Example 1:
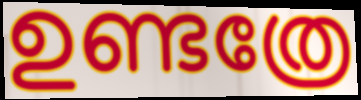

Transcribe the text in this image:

ഉണ്ടത്രേ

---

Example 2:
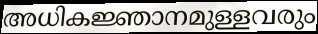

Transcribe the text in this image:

അധികജ്ഞാനമുള്ളവരും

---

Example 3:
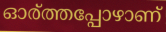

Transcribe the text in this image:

ഓര്ത്തപ്പോഴാണ്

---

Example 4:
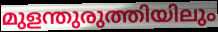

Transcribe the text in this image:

മുളന്തുരുത്തിയിലും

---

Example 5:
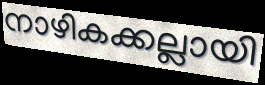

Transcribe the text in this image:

നാഴികക്കല്ലായി